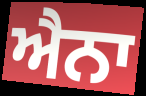
ਐਨਾ